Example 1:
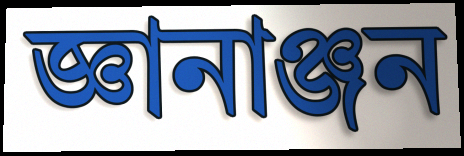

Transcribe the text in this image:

জ্ঞানাঞ্জন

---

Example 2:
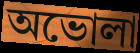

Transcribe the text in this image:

অভোলা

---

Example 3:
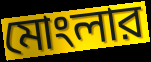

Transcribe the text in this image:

মোংলার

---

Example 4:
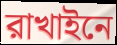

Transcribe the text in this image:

রাখাইনে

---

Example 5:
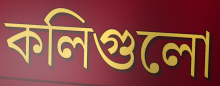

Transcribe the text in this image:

কলিগুলো